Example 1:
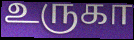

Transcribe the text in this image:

உருகா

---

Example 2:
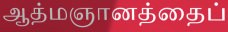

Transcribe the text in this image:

ஆத்மஞானத்தைப்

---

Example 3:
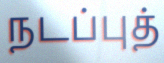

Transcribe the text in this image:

நடப்புத்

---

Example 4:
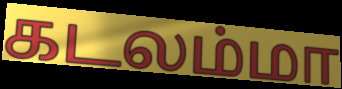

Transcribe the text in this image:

கடலம்மா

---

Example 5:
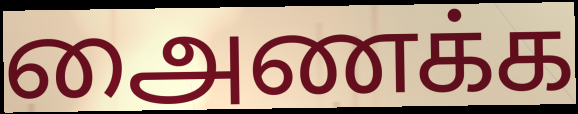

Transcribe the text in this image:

அைணக்க